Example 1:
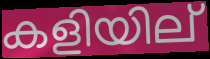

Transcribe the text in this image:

കളിയില്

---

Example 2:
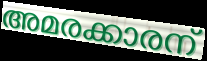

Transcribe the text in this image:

അമരക്കാരന്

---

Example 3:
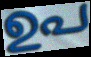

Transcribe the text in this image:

ഉപ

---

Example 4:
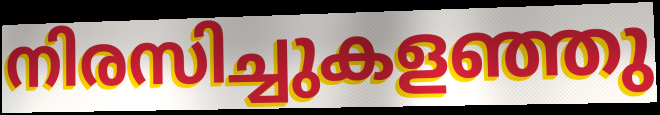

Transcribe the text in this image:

നിരസിച്ചുകളഞ്ഞു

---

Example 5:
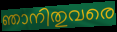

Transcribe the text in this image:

ഞാനിതുവരെ